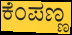
ಕೆಂಪಣ್ಣ